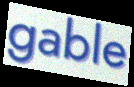
gable